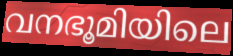
വനഭൂമിയിലെ